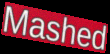
Mashed